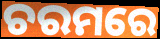
ଚରମରେ